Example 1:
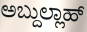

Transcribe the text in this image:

ಅಬ್ದುಲ್ಲಾಹ್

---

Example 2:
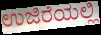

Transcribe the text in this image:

ಉಜಿರೆಯಲ್ಲಿ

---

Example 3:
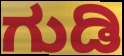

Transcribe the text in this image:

ಗುಡಿ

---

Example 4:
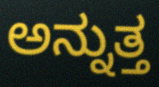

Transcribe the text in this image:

ಅನ್ನುತ್ತ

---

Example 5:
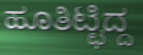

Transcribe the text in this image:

ಹೂತಿಟ್ಟಿದ್ದ